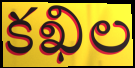
కఖిల